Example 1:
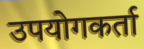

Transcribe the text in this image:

उपयोगकर्ता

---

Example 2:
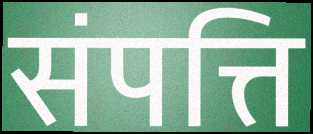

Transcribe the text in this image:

संपत्ति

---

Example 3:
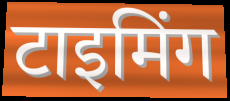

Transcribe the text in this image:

टाइमिंग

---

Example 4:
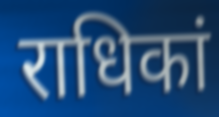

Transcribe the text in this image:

राधिकां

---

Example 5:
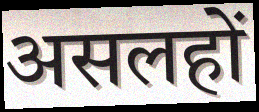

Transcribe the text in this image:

असलहों